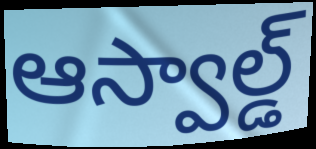
ఆస్వాల్డ్